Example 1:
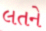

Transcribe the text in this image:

લતને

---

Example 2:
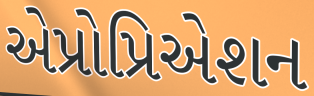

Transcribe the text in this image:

એપ્રોપ્રિએશન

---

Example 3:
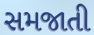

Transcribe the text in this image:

સમજાતી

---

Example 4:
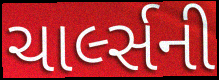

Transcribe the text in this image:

ચાર્લ્સની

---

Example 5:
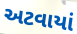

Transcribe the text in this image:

અટવાયાં